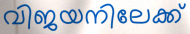
വിജയനിലേക്ക്